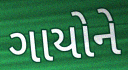
ગાયોને